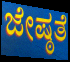
ಜೇಷ್ಠತೆ